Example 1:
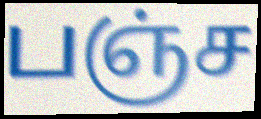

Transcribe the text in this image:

பஞ்ச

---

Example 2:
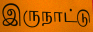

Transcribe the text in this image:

இருநாட்டு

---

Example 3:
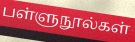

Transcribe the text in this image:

பள்ளுநூல்கள்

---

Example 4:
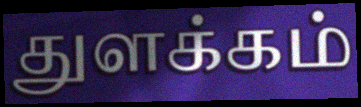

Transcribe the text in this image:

துளக்கம்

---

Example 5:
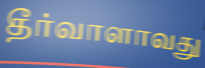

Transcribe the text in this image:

தீர்வாளாவது